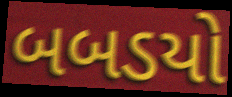
બબડયો